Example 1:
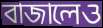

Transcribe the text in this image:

বাজালেও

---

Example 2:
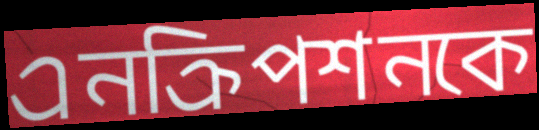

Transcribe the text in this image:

এনক্রিপশনকে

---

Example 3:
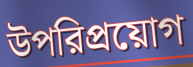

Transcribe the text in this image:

উপরিপ্রয়োগ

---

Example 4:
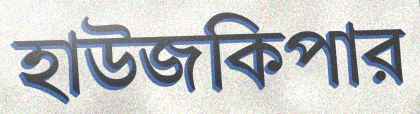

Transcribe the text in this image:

হাউজকিপার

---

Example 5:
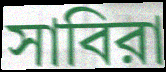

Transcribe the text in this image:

সাবিরা